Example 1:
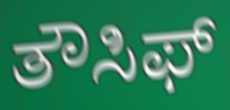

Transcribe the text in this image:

ತೌಸಿಫ್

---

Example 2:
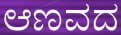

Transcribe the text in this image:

ಆಣವದ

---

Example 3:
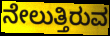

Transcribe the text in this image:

ನೇಲುತ್ತಿರುವ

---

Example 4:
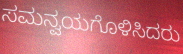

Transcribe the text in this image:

ಸಮನ್ವಯಗೊಳಿಸಿದರು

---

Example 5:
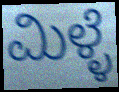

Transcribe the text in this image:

ಮಿಳ್ಳೆ